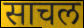
साचल